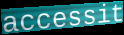
accessit